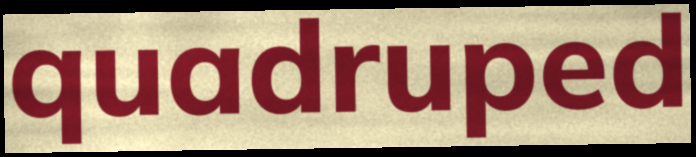
quadruped